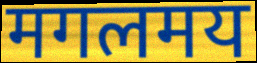
मगलमय